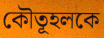
কৌতূহলকে